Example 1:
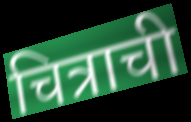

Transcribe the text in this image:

चित्राची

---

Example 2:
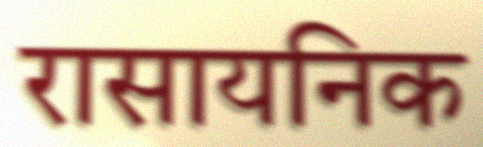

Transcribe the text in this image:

रासायनिक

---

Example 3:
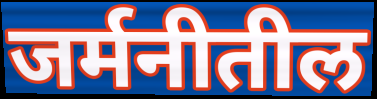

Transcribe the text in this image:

जर्मनीतील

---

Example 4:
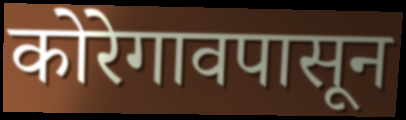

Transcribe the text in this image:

कोरेगावपासून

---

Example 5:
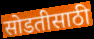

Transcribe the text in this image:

सोडतीसाठी